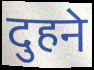
दुहने